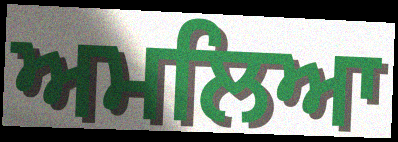
ਅਮਲਿਆ